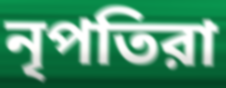
নৃপতিরা